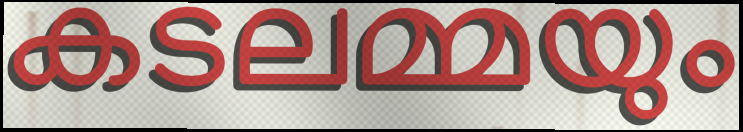
കടലമ്മയും